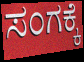
ಸಂಗಕ್ಕೆ